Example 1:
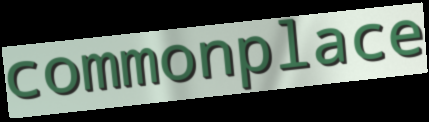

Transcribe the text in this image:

commonplace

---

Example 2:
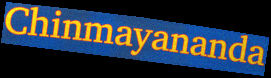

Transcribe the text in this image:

Chinmayananda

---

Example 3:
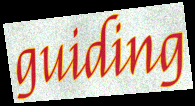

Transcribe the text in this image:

guiding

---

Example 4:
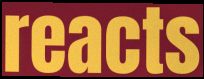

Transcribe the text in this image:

reacts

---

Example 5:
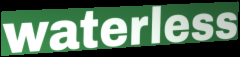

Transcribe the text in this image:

waterless